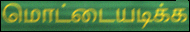
மொட்டையடிக்க